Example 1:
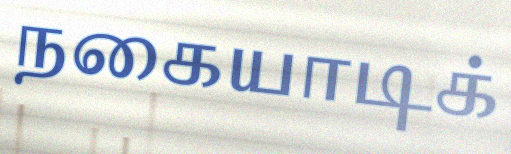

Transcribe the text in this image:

நகையாடிக்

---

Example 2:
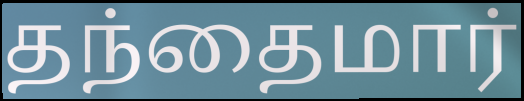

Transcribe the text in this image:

தந்தைமார்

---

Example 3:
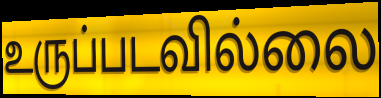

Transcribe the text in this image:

உருப்படவில்லை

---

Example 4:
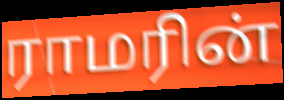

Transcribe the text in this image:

ராமரின்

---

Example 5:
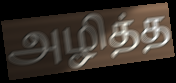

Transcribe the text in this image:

அழித்த